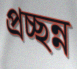
প্রচ্ছন্ন